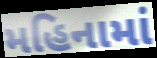
મહિનામાં